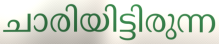
ചാരിയിട്ടിരുന്ന